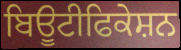
ਬਿਊਟੀਫਿਕੇਸ਼ਨ